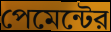
পেমেন্টের